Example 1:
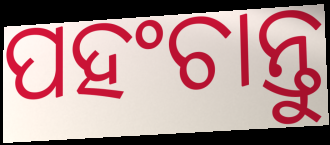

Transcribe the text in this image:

ପହଂଚାନ୍ତୁ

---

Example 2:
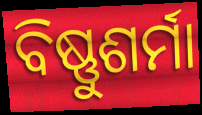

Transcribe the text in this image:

ବିଷ୍ଣୁଶର୍ମା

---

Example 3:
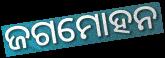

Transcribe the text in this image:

ଜଗମୋହନ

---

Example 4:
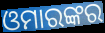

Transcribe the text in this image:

ଓମାରଙ୍କର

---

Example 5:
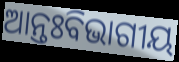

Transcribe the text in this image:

ଆନ୍ତଃବିଭାଗୀୟ